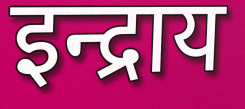
इन्द्राय